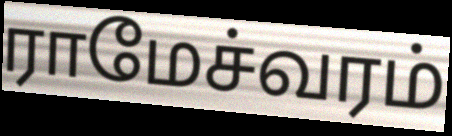
ராமேச்வரம்